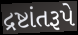
દ્રષ્ટાંતરૂપે